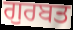
ਗੁਰਬਤ